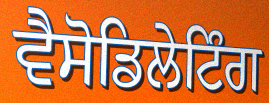
ਵੈਸੋਡਿਲੇਟਿੰਗ